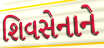
શિવસેનાને